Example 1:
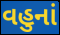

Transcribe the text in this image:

વહુનાં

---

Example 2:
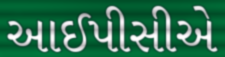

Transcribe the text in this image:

આઈપીસીએ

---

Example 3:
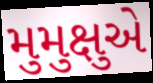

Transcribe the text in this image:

મુમુક્ષુએ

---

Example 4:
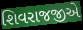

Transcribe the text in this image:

શિવરાજજીએ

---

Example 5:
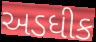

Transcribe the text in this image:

અડધીક